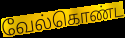
வேல்கொண்ட